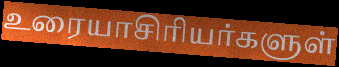
உரையாசிரியர்களுள்